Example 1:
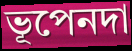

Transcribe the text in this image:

ভূপেনদা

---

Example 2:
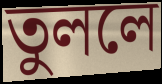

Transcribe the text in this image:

তুললে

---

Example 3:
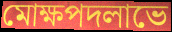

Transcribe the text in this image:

মোক্ষপদলাভে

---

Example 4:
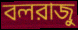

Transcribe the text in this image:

বলরাজু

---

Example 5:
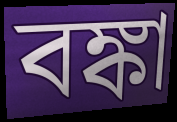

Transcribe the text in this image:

বঙ্কা